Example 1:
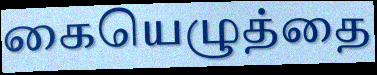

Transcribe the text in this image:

கையெழுத்தை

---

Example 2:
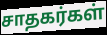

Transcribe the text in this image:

சாதகர்கள்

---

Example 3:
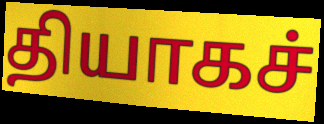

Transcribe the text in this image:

தியாகச்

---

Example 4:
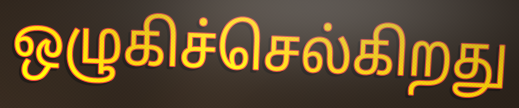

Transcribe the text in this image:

ஒழுகிச்செல்கிறது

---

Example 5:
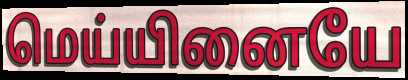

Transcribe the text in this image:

மெய்யினையே